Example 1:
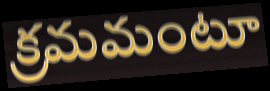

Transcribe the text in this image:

క్రమమంటూ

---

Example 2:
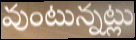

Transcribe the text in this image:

వుంటున్నట్లు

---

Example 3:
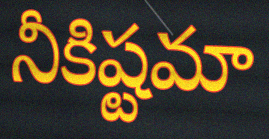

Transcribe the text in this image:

నీకిష్టమా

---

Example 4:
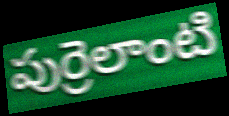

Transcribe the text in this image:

పుర్రెలాంటి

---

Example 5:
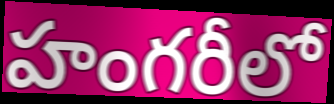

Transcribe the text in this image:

హంగరీలో